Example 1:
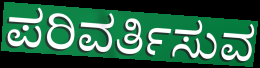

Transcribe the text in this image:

ಪರಿವರ್ತಿಸುವ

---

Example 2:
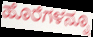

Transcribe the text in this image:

ಹೊರೆಗಳನ್ನೂ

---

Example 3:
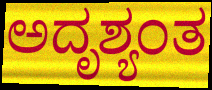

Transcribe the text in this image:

ಅದೃಶ್ಯಂತ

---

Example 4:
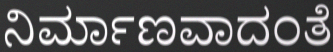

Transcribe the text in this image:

ನಿರ್ಮಾಣವಾದಂತೆ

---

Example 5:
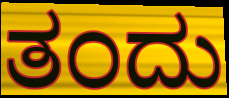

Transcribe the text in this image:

ತಂದು